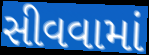
સીવવામાં